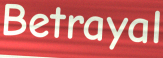
Betrayal